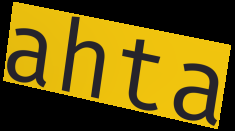
ahta